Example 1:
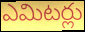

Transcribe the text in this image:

ఎమిటర్లు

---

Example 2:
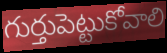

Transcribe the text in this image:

గుర్తుపెట్టుకోవాలి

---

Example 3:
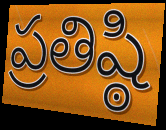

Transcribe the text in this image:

ప్రతిష్ఠి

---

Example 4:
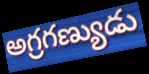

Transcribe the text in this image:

అగ్రగణ్యుడు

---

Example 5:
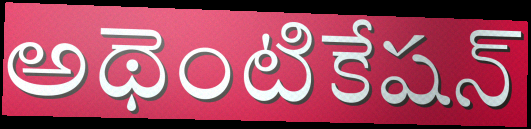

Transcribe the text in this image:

అథెంటికేషన్